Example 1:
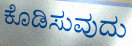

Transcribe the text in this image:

ಕೊಡಿಸುವುದು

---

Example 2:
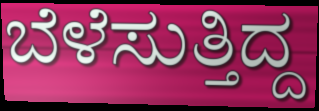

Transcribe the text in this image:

ಬೆಳೆಸುತ್ತಿದ್ದ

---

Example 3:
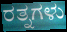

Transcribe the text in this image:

ರತ್ನಗಳು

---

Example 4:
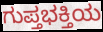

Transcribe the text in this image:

ಗುಪ್ತಭಕ್ತಿಯ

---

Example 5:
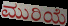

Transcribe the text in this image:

ಮುರಿಯೆ